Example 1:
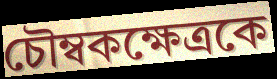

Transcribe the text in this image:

চৌম্বকক্ষেত্রকে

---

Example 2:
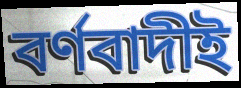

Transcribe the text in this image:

বর্ণবাদীই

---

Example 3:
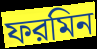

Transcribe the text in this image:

ফরমিন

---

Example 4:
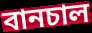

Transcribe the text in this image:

বানচাল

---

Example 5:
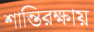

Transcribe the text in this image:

শান্তিরক্ষায়